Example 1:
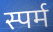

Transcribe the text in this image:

स्पर्म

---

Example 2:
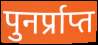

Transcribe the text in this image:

पुनर्प्राप्त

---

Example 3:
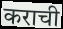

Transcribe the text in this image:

कराची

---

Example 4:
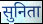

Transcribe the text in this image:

सुनिता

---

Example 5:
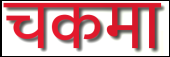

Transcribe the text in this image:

चकमा